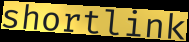
shortlink